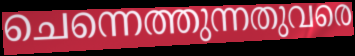
ചെന്നെത്തുന്നതുവരെ